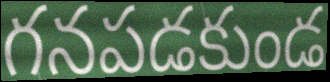
గనపడకుండ